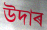
উদাৰ